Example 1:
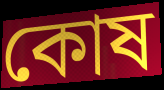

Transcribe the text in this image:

কোষ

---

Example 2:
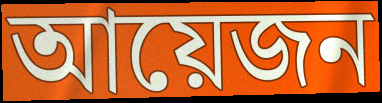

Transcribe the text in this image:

আয়েজন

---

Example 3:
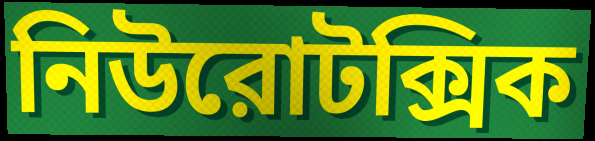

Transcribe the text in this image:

নিউরোটক্সিক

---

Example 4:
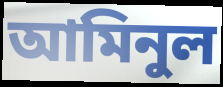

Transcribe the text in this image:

আমিনুল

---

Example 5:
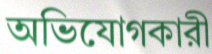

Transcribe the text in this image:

অভিযোগকারী